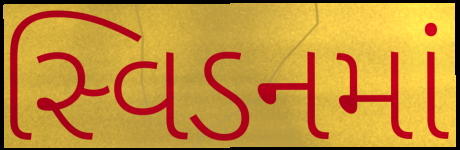
સ્વિડનમાં